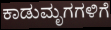
ಕಾಡುಮೃಗಗಳಿಗೆ